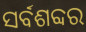
ସର୍ବଶବ୍ଦର